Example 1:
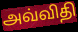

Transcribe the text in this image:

அவ்விதி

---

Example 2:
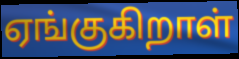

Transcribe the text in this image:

ஏங்குகிறாள்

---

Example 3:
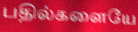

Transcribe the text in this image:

பதில்களையே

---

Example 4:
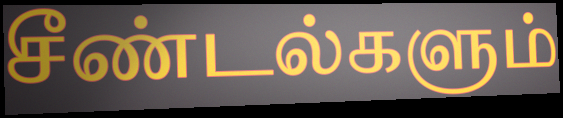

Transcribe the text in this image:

சீண்டல்களும்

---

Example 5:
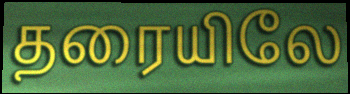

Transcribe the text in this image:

தரையிலே